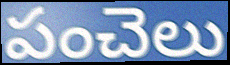
పంచెలు